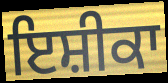
ਇਸ਼ੀਕਾ